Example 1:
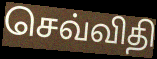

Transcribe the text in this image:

செவ்விதி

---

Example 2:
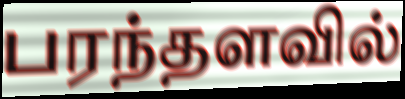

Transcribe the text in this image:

பரந்தளவில்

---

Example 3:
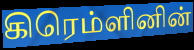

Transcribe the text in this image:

கிரெம்ளினின்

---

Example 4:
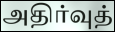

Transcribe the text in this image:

அதிர்வுத்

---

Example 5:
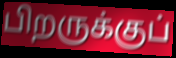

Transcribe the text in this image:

பிறருக்குப்